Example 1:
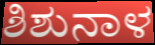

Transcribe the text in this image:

ಶಿಶುನಾಳ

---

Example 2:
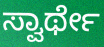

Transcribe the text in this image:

ಸ್ವಾರ್ಥೇ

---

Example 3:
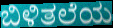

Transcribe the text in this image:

ಬಿಳಿತಲೆಯ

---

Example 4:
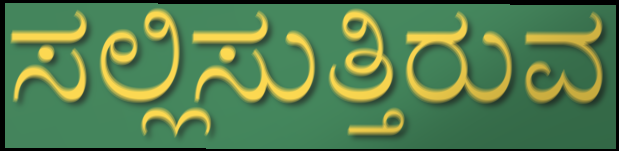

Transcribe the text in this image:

ಸಲ್ಲಿಸುತ್ತಿರುವ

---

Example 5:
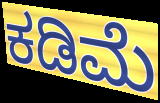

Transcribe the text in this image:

ಕಡಿಮೆ